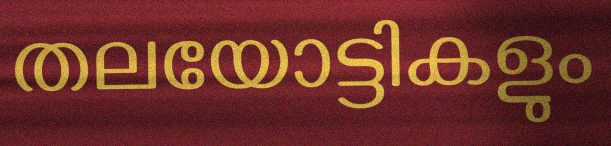
തലയോട്ടികളും